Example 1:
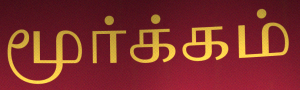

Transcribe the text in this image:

மூர்க்கம்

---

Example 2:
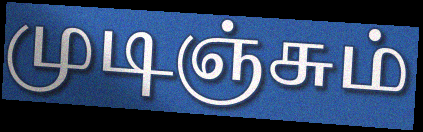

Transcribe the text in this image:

முடிஞ்சும்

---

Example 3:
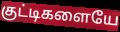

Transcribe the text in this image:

குட்டிகளையே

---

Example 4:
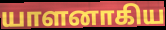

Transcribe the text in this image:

யாளனாகிய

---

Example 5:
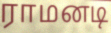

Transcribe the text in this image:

ராமனடி